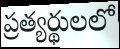
ప్రత్యర్థులలో